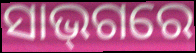
ସାଭ୍‌ଗରେ